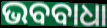
ଭବବାଧା